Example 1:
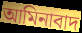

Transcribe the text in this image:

আমিনাবাদ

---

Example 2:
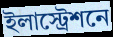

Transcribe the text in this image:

ইলাস্ট্রেশনে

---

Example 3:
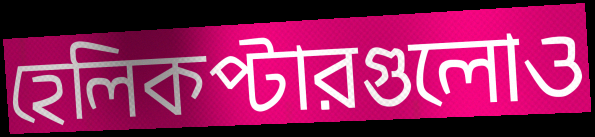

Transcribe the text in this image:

হেলিকপ্টারগুলোও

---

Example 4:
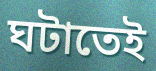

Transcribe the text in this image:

ঘটাতেই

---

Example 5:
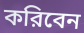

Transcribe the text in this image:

করিবেন